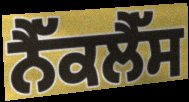
ਨੈੱਕਲੈੱਸ